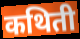
कथिती